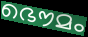
ഭൌമം